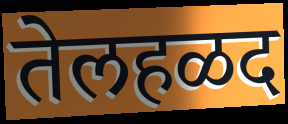
तेलहळद